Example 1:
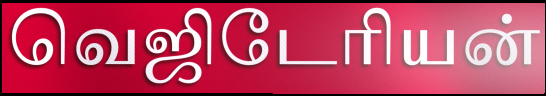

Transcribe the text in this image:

வெஜிடேரியன்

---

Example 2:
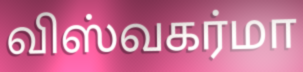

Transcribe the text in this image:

விஸ்வகர்மா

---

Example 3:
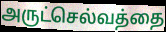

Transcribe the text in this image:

அருட்செல்வத்தை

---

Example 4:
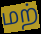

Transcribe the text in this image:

மற்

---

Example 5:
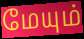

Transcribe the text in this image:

மேயும்